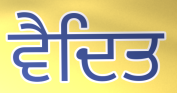
ਵੈਦਿਤ